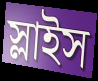
স্লাইস